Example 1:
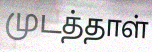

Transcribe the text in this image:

முடத்தாள்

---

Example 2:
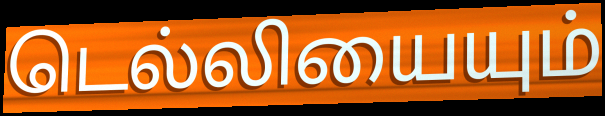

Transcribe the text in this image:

டெல்லியையும்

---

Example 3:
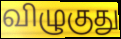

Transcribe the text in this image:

விழுகுது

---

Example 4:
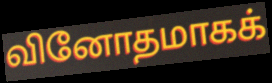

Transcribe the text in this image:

வினோதமாகக்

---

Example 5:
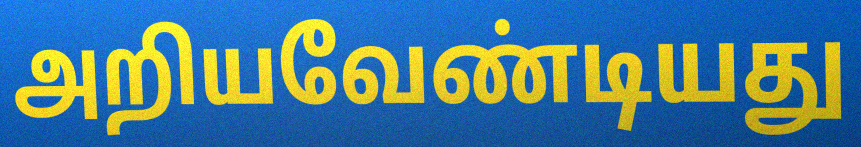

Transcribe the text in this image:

அறியவேண்டியது